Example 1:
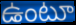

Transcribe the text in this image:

ఉంటూ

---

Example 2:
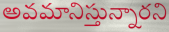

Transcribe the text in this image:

అవమానిస్తున్నారని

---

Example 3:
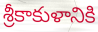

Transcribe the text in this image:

శ్రీకాకుళానికి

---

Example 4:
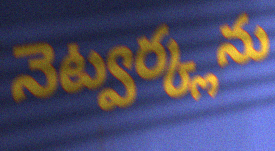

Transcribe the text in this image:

నెట్వర్క్లను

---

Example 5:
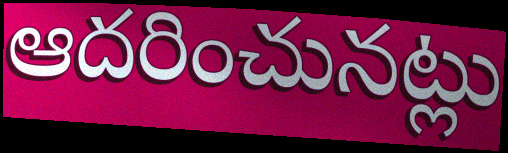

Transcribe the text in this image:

ఆదరించునట్లు